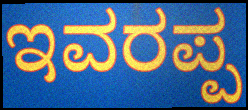
ಇವರಪ್ಪ